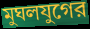
মুঘলযুগের